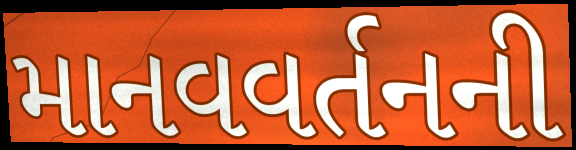
માનવવર્તનની